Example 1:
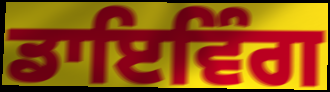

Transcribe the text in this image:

ਡਾਇਵਿੰਗ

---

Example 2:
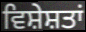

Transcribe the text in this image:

ਵਿਸ਼ੇਸ਼ਤਾਂ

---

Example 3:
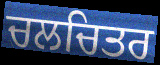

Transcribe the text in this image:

ਚਲਚਿਤਰ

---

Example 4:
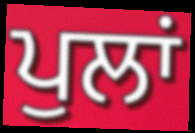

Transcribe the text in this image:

ਪੁਲਾਂ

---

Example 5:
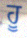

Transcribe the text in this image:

ਹੂ